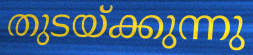
തുടയ്ക്കുന്നു